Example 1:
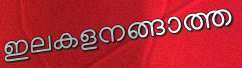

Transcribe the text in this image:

ഇലകളനങ്ങാത്ത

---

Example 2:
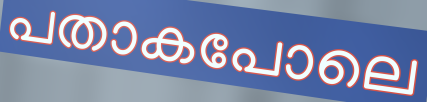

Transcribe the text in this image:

പതാകപോലെ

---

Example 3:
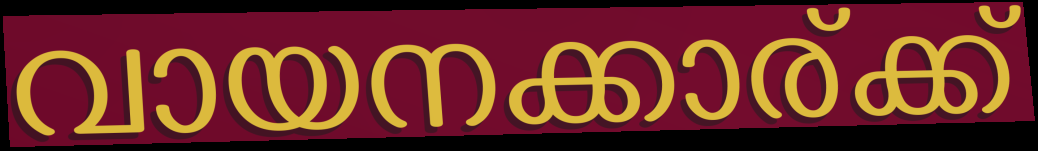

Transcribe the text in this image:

വായനക്കാര്ക്ക്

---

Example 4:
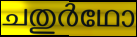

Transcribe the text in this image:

ചതുർഥോ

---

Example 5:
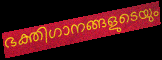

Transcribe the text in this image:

ഭക്തിഗാനങ്ങളുടെയും